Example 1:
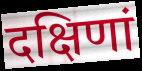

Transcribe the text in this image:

दक्षिणां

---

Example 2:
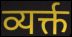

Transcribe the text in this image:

व्यर्क्त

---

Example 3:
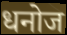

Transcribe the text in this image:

धनोज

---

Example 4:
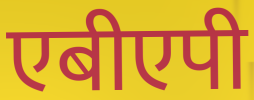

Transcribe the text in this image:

एबीएपी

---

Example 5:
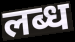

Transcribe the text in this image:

लब्ध